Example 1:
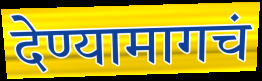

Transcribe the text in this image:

देण्यामागचं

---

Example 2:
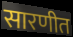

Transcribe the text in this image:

सारणीत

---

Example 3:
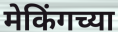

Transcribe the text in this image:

मेकिंगच्या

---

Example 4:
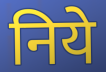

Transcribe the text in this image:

निये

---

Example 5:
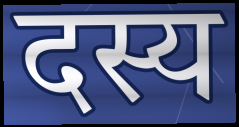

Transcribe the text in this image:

दस्य